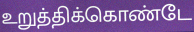
உறுத்திக்கொண்டே